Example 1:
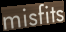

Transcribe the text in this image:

misfits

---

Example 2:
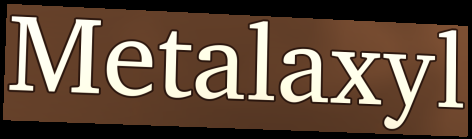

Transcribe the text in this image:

Metalaxyl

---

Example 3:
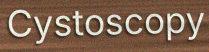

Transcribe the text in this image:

Cystoscopy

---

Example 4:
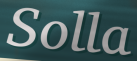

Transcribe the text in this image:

Solla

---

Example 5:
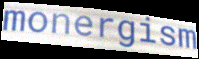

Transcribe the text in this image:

monergism